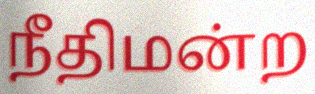
நீதிமன்ற